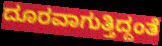
ದೂರವಾಗುತ್ತಿದ್ದಂತೆ